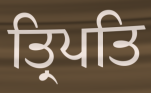
ਤ੍ਰਿਪਤਿ